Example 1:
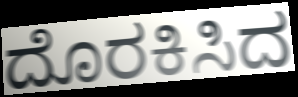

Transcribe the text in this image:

ದೊರಕಿಸಿದ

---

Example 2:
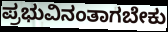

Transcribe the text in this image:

ಪ್ರಭುವಿನಂತಾಗಬೇಕು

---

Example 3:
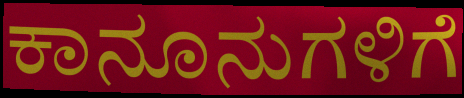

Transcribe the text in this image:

ಕಾನೂನುಗಳಿಗೆ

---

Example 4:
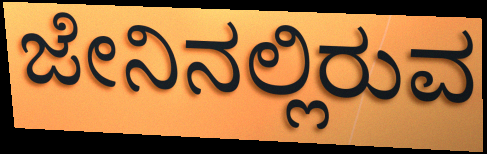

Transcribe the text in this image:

ಜೇನಿನಲ್ಲಿರುವ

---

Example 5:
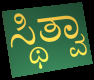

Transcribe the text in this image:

ಸ್ಥಿತ್ವಾ